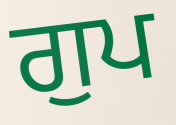
ਗੁਪ